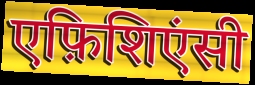
एफ़िशिएंसी